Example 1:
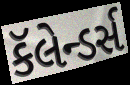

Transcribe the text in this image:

કૅલેન્ડર્સ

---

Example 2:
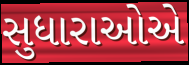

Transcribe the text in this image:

સુધારાઓએ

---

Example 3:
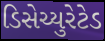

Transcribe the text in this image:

ડિસેચ્યુરેટેડ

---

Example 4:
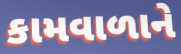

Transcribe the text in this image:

કામવાળાને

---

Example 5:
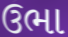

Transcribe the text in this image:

ઉભા